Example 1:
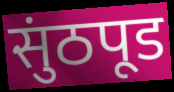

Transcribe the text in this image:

सुंठपूड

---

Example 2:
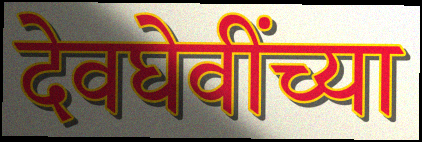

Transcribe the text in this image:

देवघेवींच्या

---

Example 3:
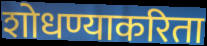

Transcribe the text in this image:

शोधण्याकरिता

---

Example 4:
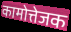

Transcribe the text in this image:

कामोत्तेजक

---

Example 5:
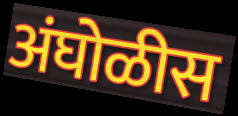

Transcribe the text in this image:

अंघोळीस